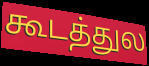
கூடத்துல